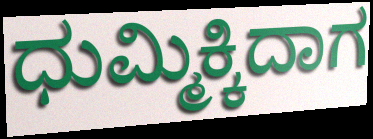
ಧುಮ್ಮಿಕ್ಕಿದಾಗ